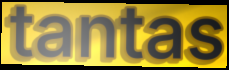
tantas